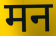
मन